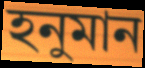
হনুমান